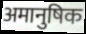
अमानुषिक